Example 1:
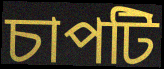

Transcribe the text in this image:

চাপটি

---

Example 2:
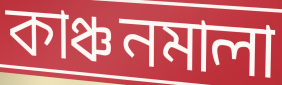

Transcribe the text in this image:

কাঞ্চনমালা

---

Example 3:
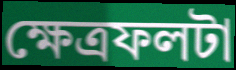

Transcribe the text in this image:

ক্ষেত্রফলটা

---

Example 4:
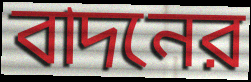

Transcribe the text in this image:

বাদনের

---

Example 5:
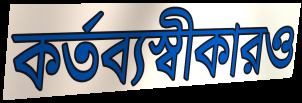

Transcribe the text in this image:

কর্তব্যস্বীকারও